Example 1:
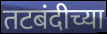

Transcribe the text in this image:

तटबंदीच्या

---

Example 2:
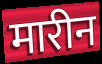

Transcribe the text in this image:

मारीन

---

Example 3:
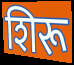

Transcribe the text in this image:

शिरू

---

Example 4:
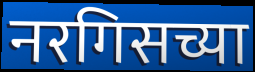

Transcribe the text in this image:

नरगिसच्या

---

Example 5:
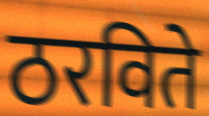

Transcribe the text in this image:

ठरविते